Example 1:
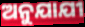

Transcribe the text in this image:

ଅନୁଯାଯୀ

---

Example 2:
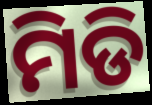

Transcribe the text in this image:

ମିଡି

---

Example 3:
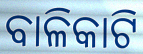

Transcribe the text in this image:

ବାଳିକାଟି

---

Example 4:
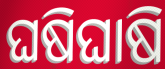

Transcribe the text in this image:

ଘଷିଘାଷି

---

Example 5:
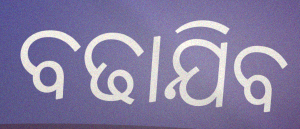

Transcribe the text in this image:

ବଢାଯିବ